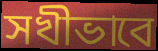
সখীভাবে